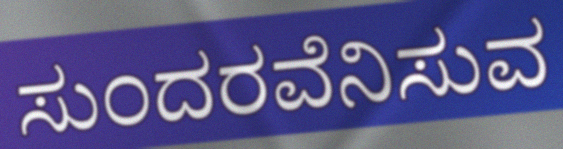
ಸುಂದರವೆನಿಸುವ